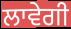
ਲਾਵੇਗੀ